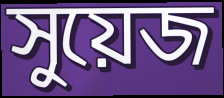
সুয়েজ